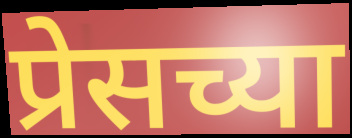
प्रेसच्या